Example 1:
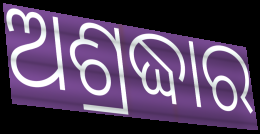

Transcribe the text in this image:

ଅଶ୍ରଦ୍ଧାର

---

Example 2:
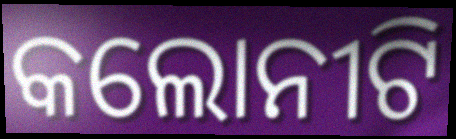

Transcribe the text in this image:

କଲୋନୀଟି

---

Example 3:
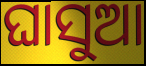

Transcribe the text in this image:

ଘାସୁଆ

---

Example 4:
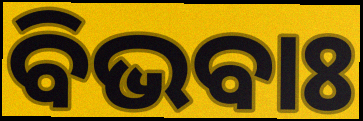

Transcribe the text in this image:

ବିଭବାଃ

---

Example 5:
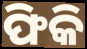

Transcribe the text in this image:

ଫିକି